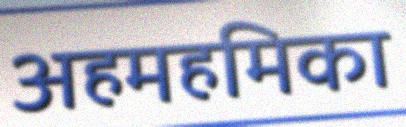
अहमहमिका